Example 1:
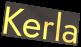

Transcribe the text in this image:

Kerla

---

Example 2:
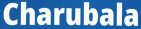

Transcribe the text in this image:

Charubala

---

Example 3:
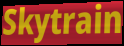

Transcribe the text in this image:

Skytrain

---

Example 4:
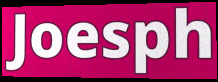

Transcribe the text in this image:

Joesph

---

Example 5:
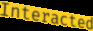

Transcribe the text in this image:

Interacted